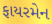
ફાયરમેન